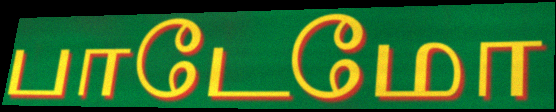
பாடேமோ